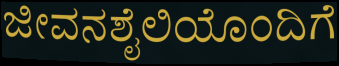
ಜೀವನಶೈಲಿಯೊಂದಿಗೆ